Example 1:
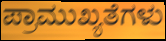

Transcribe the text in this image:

ಪ್ರಾಮುಖ್ಯತೆಗಳು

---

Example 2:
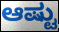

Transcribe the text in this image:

ಆಷ್ಟು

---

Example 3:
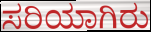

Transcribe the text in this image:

ಸರಿಯಾಗಿರು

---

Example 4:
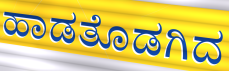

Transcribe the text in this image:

ಹಾಡತೊಡಗಿದ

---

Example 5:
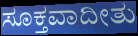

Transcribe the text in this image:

ಸೂಕ್ತವಾದೀತು